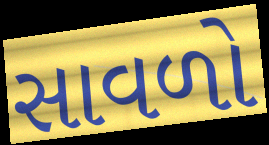
સાવળો